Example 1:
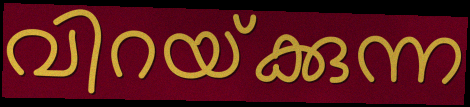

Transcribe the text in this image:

വിറയ്‌ക്കുന്ന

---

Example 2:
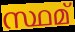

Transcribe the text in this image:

സ്ഥമ്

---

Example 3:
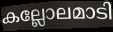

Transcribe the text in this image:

കല്ലോലമാടി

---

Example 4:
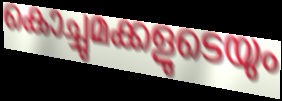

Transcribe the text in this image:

കൊച്ചുമക്കളുടെയും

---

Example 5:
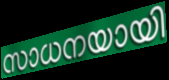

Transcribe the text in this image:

സാധനയായി